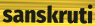
sanskruti